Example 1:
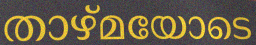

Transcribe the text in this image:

താഴ്മയോടെ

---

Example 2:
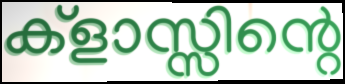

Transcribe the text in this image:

ക്ളാസ്സിന്റെ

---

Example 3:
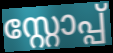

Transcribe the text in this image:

സ്റ്റോപ്പ്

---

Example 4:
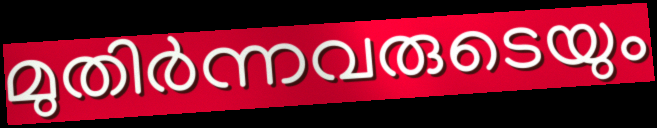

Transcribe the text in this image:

മുതിർന്നവരുടെയും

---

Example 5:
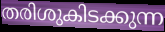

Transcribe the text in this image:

തരിശുകിടക്കുന്ന